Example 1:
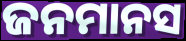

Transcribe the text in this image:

ଜନମାନସ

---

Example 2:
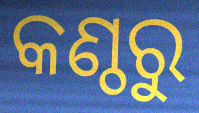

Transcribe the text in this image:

କଣ୍ଠରୁ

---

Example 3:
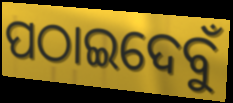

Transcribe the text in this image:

ପଠାଇଦେବୁଁ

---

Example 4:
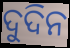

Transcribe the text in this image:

ଦୁଦିନ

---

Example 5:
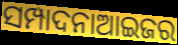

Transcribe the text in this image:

ସମ୍ପାଦନାଆଇଜର